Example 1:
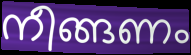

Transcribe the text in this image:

നീങ്ങണം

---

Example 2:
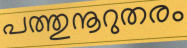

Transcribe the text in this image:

പത്തുനൂറുതരം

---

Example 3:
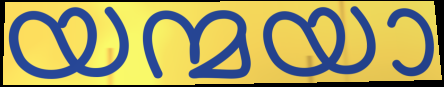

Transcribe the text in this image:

യന്മയാ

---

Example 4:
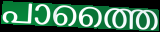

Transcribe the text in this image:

പാത്തൈ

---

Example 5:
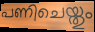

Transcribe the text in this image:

പണിചെയ്തും